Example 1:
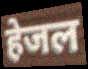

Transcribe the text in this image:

हेजल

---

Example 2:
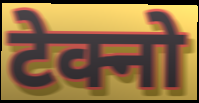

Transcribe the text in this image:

टेक्नो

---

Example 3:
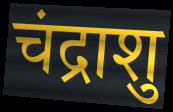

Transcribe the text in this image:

चंद्राशु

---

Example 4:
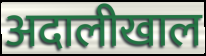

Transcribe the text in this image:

अदालीखाल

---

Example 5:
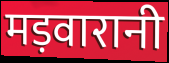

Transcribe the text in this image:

मड़वारानी